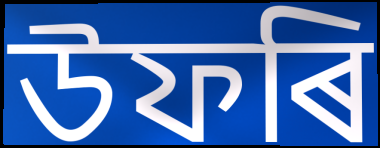
উফৰি